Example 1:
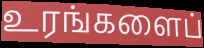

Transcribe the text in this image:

உரங்களைப்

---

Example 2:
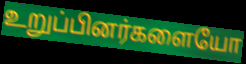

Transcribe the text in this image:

உறுப்பினர்களையோ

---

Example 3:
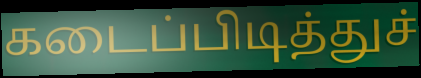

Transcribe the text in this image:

கடைப்பிடித்துச்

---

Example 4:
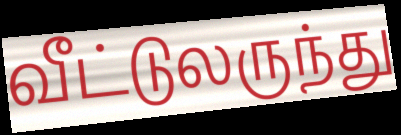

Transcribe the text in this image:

வீட்டுலருந்து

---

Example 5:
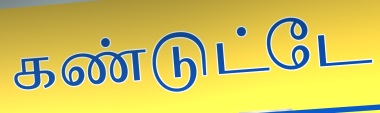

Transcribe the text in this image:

கண்டுட்டே